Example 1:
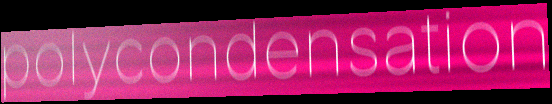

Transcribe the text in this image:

polycondensation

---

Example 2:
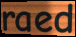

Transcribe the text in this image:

raed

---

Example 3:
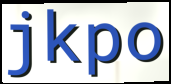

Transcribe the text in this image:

jkpo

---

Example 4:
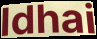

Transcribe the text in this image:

Idhai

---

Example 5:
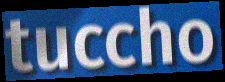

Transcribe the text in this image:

tuccho